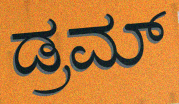
ಡ್ರಮ್